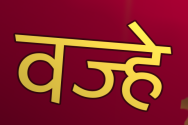
वज्हे